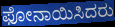
ಫೋನಾಯಿಸಿದರು